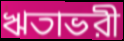
ঋতাভরী